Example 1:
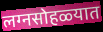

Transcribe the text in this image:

लग्नसोहळ्यात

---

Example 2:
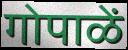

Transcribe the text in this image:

गोपाळें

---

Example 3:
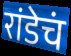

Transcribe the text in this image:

रांडेचं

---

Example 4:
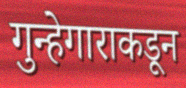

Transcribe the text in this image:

गुन्हेगाराकडून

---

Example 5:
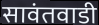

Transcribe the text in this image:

सावंतवाडी